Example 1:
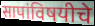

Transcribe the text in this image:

सापांविषयीचे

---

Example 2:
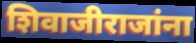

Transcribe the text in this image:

शिवाजीराजांना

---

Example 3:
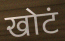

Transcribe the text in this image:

खोटं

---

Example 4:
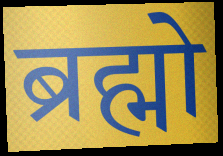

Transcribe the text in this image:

ब्रह्मो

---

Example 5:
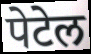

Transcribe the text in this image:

पेटेल